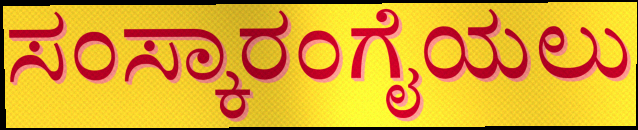
ಸಂಸ್ಕಾರಂಗೈಯಲು